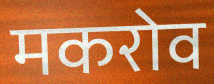
मकरोव